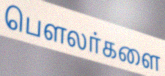
பௌலர்களை